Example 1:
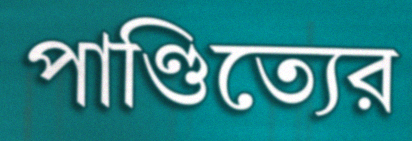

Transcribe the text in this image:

পাণ্ডিত্যের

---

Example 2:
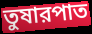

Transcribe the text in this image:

তুষারপাত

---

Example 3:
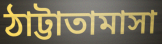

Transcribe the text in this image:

ঠাট্টাতামাসা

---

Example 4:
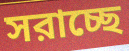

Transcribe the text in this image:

সরাচ্ছে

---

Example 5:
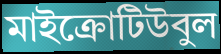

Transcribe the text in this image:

মাইক্রোটিউবুল